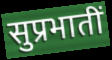
सुप्रभातीं